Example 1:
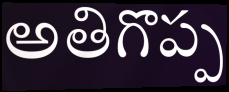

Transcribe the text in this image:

అతిగొప్ప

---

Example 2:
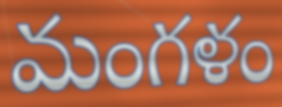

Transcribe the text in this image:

మంగళం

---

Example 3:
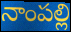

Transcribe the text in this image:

నాంపల్లి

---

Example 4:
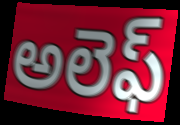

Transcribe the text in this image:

అలెఫ్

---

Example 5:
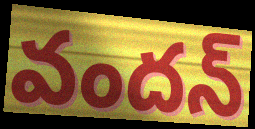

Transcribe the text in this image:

వందన్